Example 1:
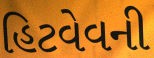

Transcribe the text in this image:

હિટવેવની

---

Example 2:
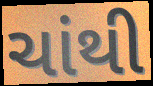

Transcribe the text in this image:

ચાંથી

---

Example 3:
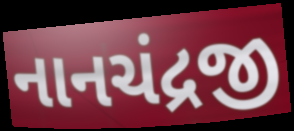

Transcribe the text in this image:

નાનચંદ્રજી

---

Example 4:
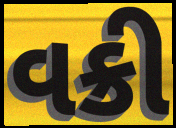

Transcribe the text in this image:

વક્રી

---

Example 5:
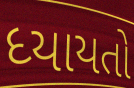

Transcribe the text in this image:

ધ્યાયતો